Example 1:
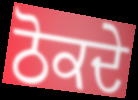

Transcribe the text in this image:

ਠੋਕਦੇ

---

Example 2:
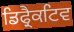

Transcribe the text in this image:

ਡਿਫ੍ਰੈਕਟਿਵ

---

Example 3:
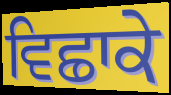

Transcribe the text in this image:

ਵਿਛਾਕੇ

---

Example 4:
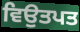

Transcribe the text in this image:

ਵਿਉਤਪਤ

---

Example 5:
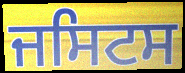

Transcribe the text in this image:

ਜਸਿਟਸ